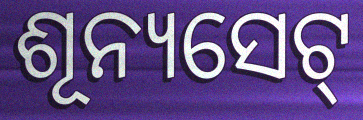
ଶୂନ୍ୟସେଟ୍